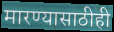
मारण्यासाठीही